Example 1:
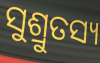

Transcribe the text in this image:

ସୁଶ୍ରୁତସ୍ୟ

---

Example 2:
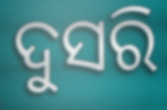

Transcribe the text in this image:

ଦୁସରି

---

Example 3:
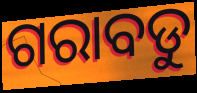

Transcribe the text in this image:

ଗରାବଡୁ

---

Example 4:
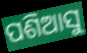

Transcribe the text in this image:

ପଶିଆସୁ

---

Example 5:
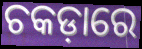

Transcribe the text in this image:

ଚକଡ଼ାରେ